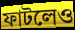
ফাটলেও